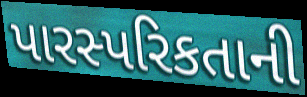
પારસ્પરિકતાની